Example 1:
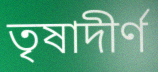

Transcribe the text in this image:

তৃষাদীর্ণ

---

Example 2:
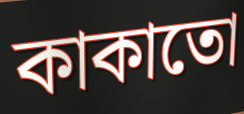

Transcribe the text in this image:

কাকাতো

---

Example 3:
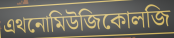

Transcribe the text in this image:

এথনোমিউজিকোলজি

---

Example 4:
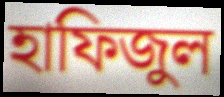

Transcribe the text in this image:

হাফিজুল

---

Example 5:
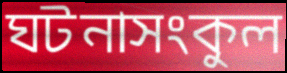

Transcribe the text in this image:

ঘটনাসংকুল